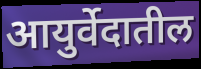
आयुर्वेदातील